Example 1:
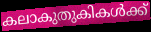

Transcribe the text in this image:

കലാകുതുകികൾക്ക്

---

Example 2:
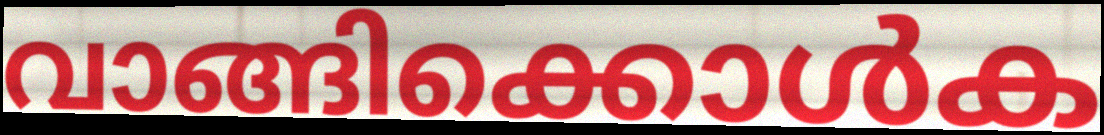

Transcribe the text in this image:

വാങ്ങിക്കൊൾക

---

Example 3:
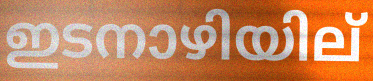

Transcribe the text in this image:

ഇടനാഴിയില്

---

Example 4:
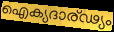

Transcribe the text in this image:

ഐക്യദാര്ഢ്യം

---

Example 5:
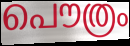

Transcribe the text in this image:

പൌത്രം